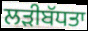
ਲੜੀਬੱਧਤਾ